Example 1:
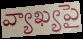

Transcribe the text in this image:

వ్యాఖ్యపై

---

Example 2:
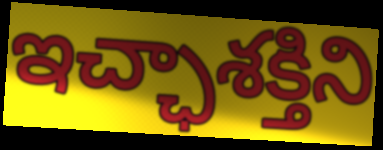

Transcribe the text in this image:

ఇచ్ఛాశక్తిని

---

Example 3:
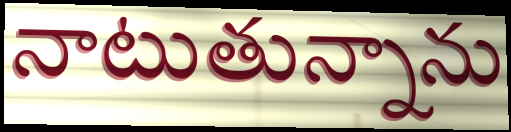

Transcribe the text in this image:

నాటుతున్నాను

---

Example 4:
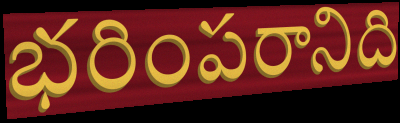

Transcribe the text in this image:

భరింపరానిది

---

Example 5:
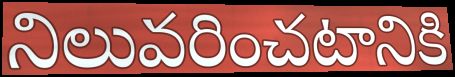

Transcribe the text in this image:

నిలువరించటానికి